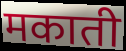
मकाती